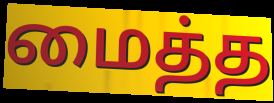
மைத்த